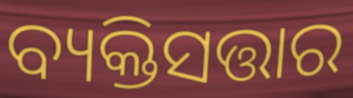
ବ୍ୟକ୍ତିସତ୍ତାର